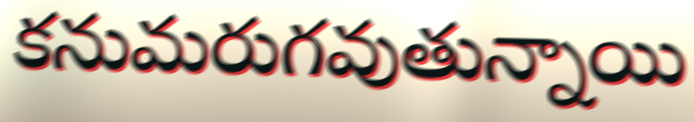
కనుమరుగవుతున్నాయి